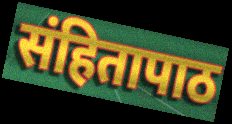
संहितापाठ